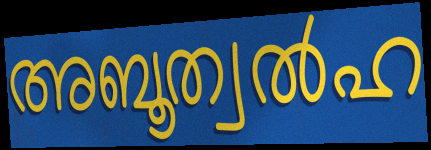
അബൂത്വൽഹ